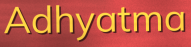
Adhyatma